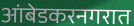
आंबेडकरनगरात